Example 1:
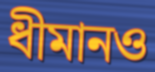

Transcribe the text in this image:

ধীমানও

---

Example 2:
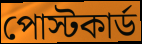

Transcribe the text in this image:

পোস্টকার্ড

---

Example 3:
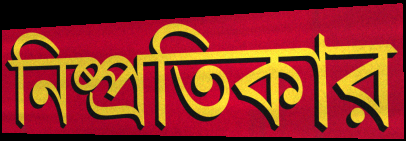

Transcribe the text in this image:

নিষ্প্রতিকার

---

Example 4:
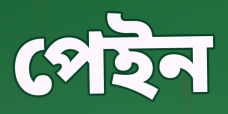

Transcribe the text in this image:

পেইন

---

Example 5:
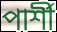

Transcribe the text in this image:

পার্শী